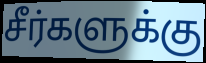
சீர்களுக்கு